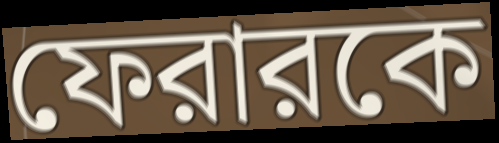
ফেরারকে